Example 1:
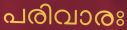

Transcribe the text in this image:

പരിവാരഃ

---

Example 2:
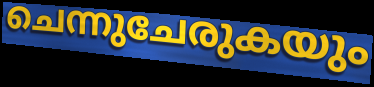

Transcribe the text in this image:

ചെന്നുചേരുകയും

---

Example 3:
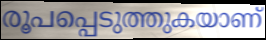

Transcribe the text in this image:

രൂപപ്പെടുത്തുകയാണ്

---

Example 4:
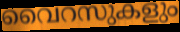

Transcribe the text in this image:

വൈറസുകളും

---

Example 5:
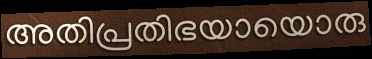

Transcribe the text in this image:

അതിപ്രതിഭയായൊരു